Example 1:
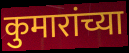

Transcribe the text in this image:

कुमारांच्या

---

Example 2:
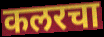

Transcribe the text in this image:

कलरचा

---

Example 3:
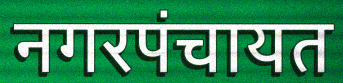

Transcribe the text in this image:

नगरपंचायत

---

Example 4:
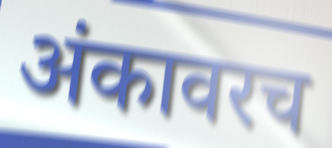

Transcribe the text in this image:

अंकावरच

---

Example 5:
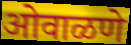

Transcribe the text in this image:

ओवाळणे